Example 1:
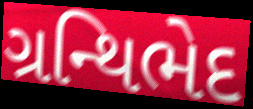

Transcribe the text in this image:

ગ્રન્થિભેદ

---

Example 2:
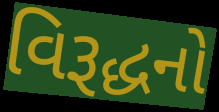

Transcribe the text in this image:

વિરૂદ્ધનો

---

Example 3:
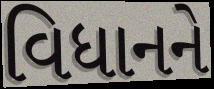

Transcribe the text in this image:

વિધાનને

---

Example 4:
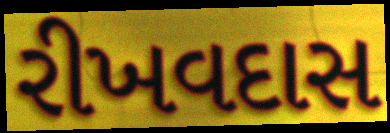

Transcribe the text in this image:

રીખવદાસ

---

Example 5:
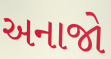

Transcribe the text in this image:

અનાજો